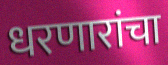
धरणारांचा